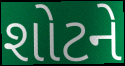
શોટને